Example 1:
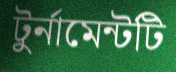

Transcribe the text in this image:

টুর্নামেন্টটি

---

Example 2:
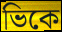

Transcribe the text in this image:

ভিকে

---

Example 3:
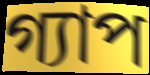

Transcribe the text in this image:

গ্যাপ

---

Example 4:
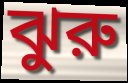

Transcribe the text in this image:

ঝুরু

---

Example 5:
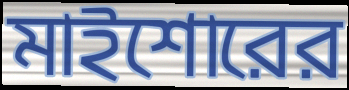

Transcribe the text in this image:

মাইশোরের